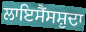
ਲਾਇਸੈਂਸਸ਼ੁਦਾ